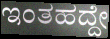
ಇಂತಹದ್ದೇ